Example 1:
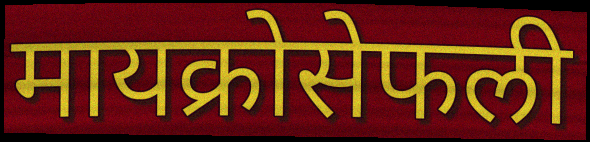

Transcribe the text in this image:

मायक्रोसेफली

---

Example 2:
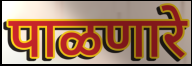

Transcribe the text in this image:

पाळणारे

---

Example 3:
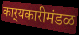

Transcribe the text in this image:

कार्यकारीमंडळ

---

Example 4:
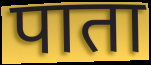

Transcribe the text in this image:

पाता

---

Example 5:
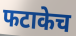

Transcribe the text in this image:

फटाकेच